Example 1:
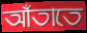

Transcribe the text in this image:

আঁতাতে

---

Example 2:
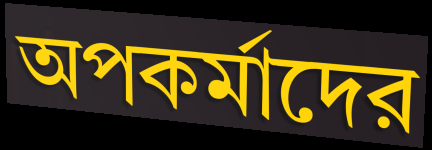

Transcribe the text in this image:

অপকর্মাদের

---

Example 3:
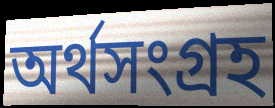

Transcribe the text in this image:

অর্থসংগ্রহ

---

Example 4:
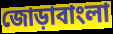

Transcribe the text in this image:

জোড়াবাংলা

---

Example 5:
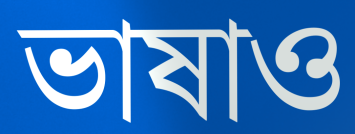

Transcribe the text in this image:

ভাষাও